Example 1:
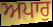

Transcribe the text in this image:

ਅਪਾਰੁ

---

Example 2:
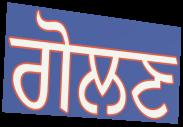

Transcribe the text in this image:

ਗੋਲਣ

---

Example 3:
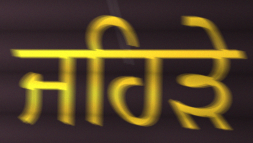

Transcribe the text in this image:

ਜਹਿੜੇ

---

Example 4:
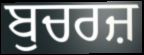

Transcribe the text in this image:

ਬੁਚਰਜ਼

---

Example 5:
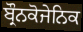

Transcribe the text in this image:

ਬ੍ਰੌਨਕੋਜੇਨਿਕ